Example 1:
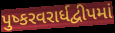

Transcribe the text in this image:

પુષ્કરવરાર્ધદ્વીપમાં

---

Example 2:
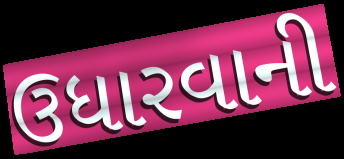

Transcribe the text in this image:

ઉધારવાની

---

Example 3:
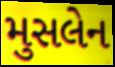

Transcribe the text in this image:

મુસલેન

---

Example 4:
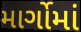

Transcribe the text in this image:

માર્ગોમાં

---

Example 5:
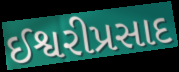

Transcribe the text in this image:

ઈશ્વરીપ્રસાદ